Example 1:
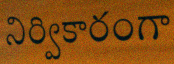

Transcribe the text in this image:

నిర్వికారంగా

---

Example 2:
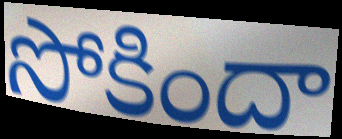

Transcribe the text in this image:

సోకిందా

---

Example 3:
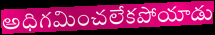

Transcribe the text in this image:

అధిగమించలేకపోయాడు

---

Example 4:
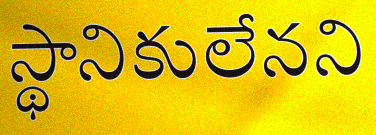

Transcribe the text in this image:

స్థానికులేనని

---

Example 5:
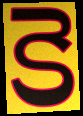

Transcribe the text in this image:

కె